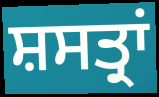
ਸ਼ਸਤ੍ਰਾਂ